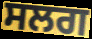
ਸਲਗ